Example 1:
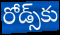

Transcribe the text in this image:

రోడ్స్‌కు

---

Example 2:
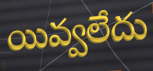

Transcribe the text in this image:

యివ్వలేదు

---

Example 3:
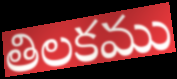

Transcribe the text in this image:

తిలకము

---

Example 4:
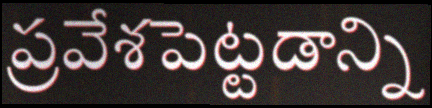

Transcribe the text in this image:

ప్రవేశపెట్టడాన్ని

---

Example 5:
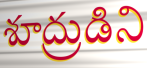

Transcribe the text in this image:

శూద్రుడిని